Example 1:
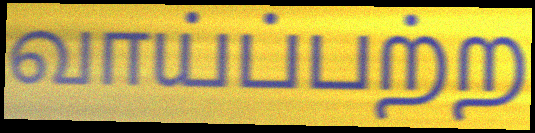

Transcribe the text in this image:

வாய்ப்பற்ற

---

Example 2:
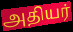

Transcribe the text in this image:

அதியர்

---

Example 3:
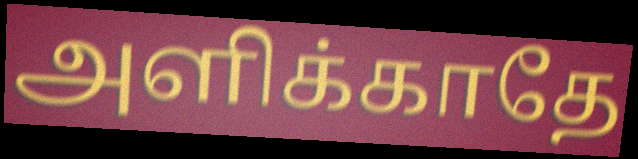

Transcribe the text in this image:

அளிக்காதே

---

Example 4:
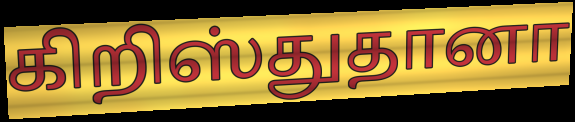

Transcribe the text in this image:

கிறிஸ்துதானா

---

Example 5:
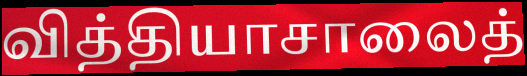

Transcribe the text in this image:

வித்தியாசாலைத்